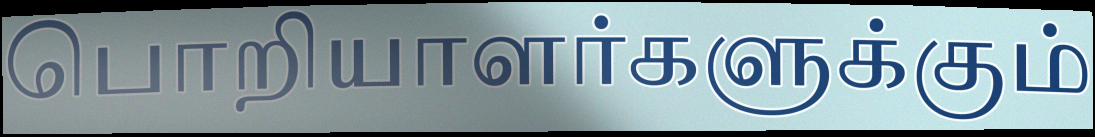
பொறியாளர்களுக்கும்